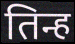
तिन्ह